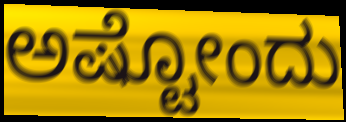
ಅಷ್ಟೋಂದು